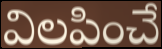
విలపించే